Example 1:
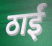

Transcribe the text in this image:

ठाईं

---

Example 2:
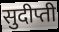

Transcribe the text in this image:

सुदीप्ती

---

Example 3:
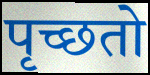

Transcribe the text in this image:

पृच्छतो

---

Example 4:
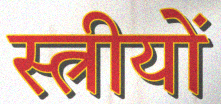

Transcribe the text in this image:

स्त्रीयों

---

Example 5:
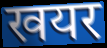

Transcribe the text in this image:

खयर